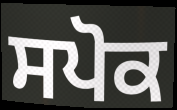
ਸਪੋਕ